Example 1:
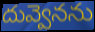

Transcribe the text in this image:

దువ్వెనను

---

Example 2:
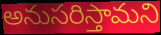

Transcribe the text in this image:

అనుసరిస్తామని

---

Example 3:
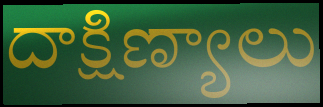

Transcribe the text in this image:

దాక్షిణ్యాలు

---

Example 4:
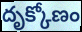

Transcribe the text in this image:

దృక్కోణం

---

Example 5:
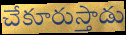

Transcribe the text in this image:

చేకూరుస్తాడు